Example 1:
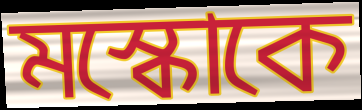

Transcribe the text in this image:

মস্কোকে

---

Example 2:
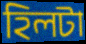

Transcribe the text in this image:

হিলটা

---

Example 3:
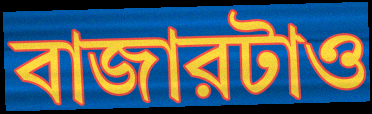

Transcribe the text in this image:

বাজারটাও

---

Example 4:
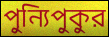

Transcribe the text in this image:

পুন্যিপুকুর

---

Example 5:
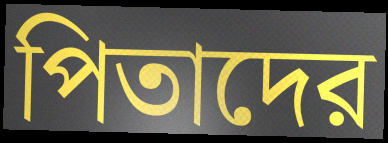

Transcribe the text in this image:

পিতাদের